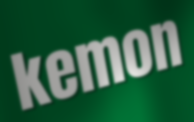
kemon